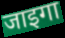
जाइगा